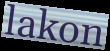
lakon